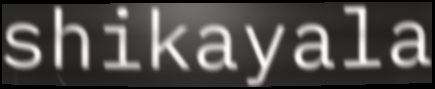
shikayala